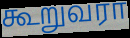
கூறுவரா